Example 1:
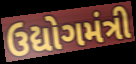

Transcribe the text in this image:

ઉદ્યોગમંત્રી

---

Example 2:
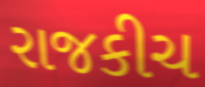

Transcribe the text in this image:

રાજકીચ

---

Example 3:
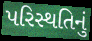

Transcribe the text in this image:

પરિસ્થતિનું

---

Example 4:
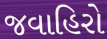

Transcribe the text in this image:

જવાહિરો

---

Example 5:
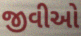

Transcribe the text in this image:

જીવીઓ